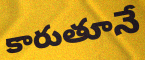
కారుతూనే